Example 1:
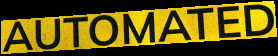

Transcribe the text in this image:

AUTOMATED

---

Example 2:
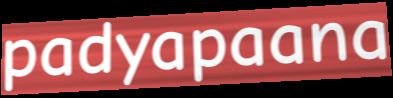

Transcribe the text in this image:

padyapaana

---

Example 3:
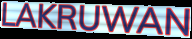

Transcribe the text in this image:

LAKRUWAN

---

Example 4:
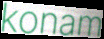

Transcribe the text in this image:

konam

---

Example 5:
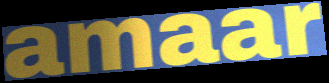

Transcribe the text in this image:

amaar